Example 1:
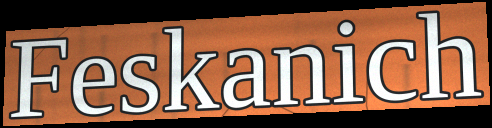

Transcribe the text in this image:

Feskanich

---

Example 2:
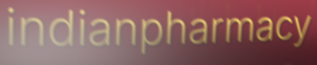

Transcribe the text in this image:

indianpharmacy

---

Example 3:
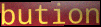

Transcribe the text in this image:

bution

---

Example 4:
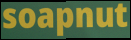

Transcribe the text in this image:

soapnut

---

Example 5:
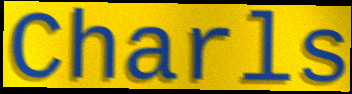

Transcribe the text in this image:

Charls